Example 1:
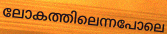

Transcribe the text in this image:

ലോകത്തിലെന്നപോലെ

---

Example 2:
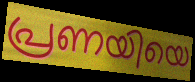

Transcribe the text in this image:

പ്രണയിയെ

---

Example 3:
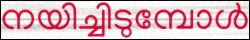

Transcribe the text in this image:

നയിച്ചിടുമ്പോൾ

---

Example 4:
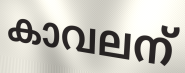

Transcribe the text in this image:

കാവലന്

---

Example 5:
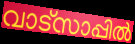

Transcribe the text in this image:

വാട്സാപ്പിൽ